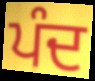
ਪੰਦ